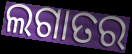
ଲଗାତର